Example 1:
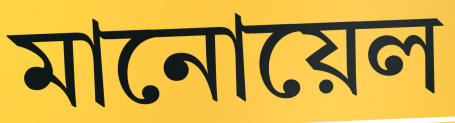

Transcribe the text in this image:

মানোয়েল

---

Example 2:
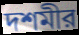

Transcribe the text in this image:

দশমীর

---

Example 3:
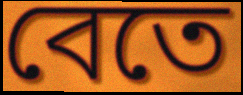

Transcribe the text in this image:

বেতে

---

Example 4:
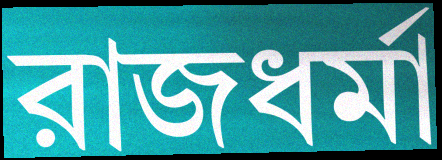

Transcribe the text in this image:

রাজধর্মা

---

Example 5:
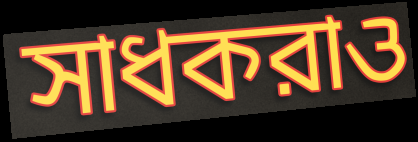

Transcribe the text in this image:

সাধকরাও